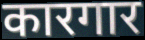
कारगार